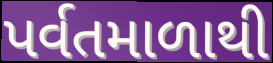
પર્વતમાળાથી